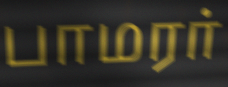
பாமரர்